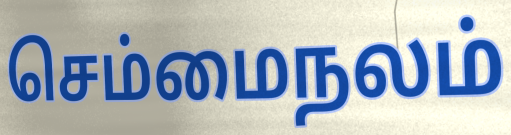
செம்மைநலம்